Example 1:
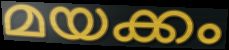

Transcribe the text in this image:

മയക്കം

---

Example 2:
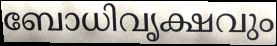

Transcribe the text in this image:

ബോധിവൃക്ഷവും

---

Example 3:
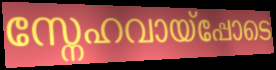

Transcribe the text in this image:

സ്നേഹവായ്പ്പോടെ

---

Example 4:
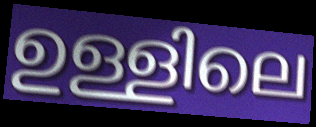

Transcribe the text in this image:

ഉള്ളിലെ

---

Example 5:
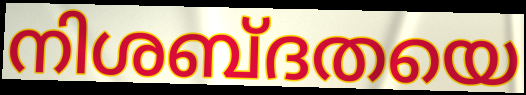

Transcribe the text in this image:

നിശബ്ദതയെ